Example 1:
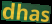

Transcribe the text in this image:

dhas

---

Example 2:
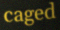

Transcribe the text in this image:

caged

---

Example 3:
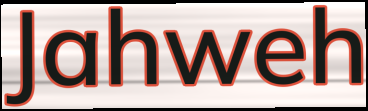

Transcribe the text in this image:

Jahweh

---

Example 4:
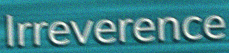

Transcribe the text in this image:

Irreverence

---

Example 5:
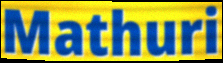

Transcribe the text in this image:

Mathuri